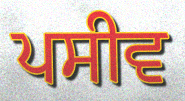
ਪਸੀਵ